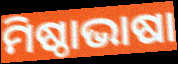
ମିଷ୍ଠାଭାଷା